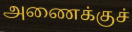
அணைக்குச்